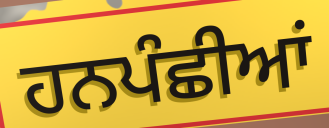
ਹਨਪੰਛੀਆਂ